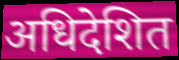
अधिदेशित